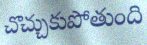
చొచ్చుకుపోతుంది